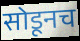
सोडूनच